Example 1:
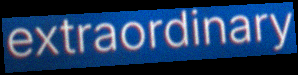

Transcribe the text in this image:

extraordinary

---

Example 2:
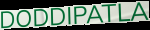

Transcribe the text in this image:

DODDIPATLA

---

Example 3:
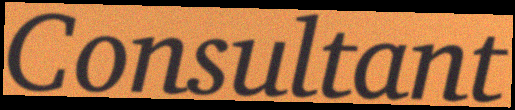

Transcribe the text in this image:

Consultant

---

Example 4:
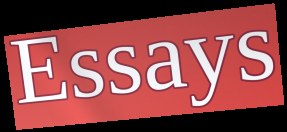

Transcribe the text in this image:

Essays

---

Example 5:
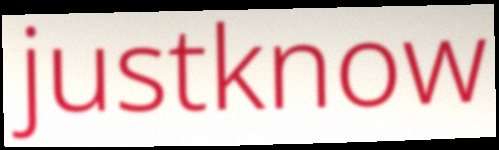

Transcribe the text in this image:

justknow